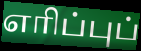
எரிப்புப்